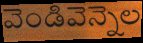
వెండివెన్నెల